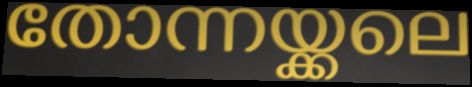
തോന്നയ്ക്കലെ